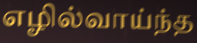
எழில்வாய்ந்த